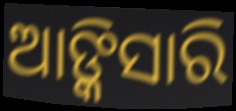
ଆଙ୍କିସାରି